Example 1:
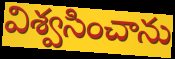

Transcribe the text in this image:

విశ్వసించాను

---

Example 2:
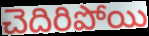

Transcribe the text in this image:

చెదిరిపోయి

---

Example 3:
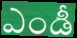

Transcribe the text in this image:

ఎండీ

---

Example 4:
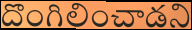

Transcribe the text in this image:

దొంగిలించాడని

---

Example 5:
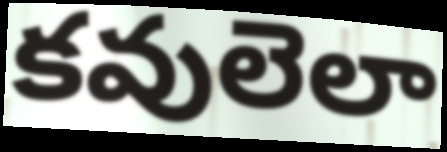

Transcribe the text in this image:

కవులెలా